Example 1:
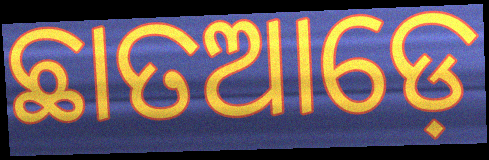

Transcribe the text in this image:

ଛାତଆଡ଼େ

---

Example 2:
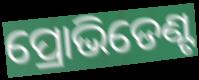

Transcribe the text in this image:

ପ୍ରୋଭିଡେଣ୍ଟ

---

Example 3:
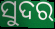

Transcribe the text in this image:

ସୁଦର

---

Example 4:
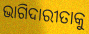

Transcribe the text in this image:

ଭାଗିଦାରୀତାକୁ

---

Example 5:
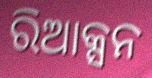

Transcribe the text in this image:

ରିଆକ୍ସନ